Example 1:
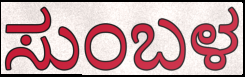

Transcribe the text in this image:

ಸುಂಬಳ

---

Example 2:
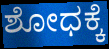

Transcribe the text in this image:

ಶೋಧಕ್ಕೆ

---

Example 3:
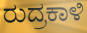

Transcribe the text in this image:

ರುದ್ರಕಾಳಿ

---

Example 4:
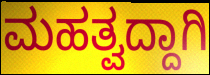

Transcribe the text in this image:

ಮಹತ್ವದ್ದಾಗಿ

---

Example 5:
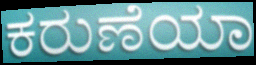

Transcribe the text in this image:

ಕರುಣೆಯಾ